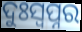
ଦୁଃସ୍ବପ୍ନର